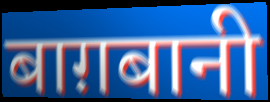
बाग़बानी